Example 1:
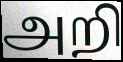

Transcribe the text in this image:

அறி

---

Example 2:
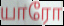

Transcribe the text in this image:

யாரோ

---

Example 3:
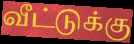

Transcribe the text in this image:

வீட்டுக்கு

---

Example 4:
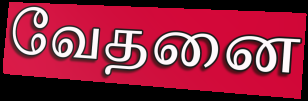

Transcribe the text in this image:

வேதனை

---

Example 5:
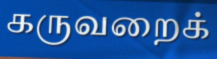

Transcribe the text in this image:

கருவறைக்